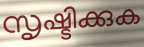
സൃഷ്ടിക്കുക